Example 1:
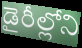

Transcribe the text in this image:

డైరీల్లోని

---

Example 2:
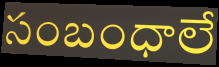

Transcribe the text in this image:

సంబంధాలే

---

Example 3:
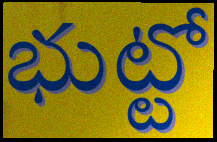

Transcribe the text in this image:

భుట్టో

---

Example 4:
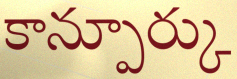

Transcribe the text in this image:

కాన్పూర్కు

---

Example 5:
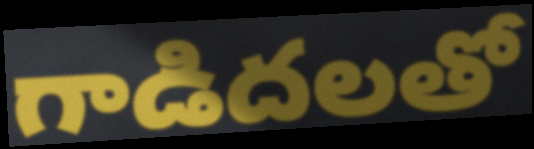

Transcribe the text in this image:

గాడిదలతో